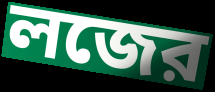
লজের